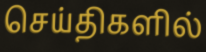
செய்திகளில்